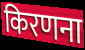
किरणना